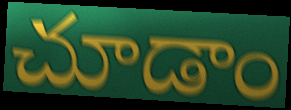
చూడాం